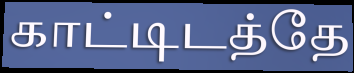
காட்டிடத்தே